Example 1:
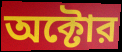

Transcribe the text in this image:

অক্টোর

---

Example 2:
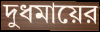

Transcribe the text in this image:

দুধমায়ের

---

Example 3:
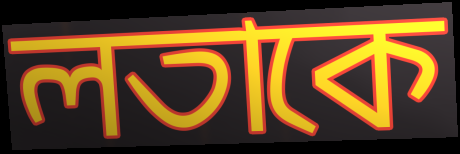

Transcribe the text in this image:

লতাকে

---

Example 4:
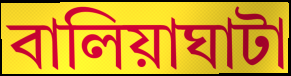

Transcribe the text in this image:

বালিয়াঘাটা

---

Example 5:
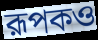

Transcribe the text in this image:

রূপকও